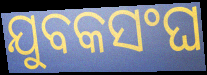
ଯୁବକସଂଘ